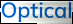
Optical